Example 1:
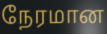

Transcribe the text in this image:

நேரமான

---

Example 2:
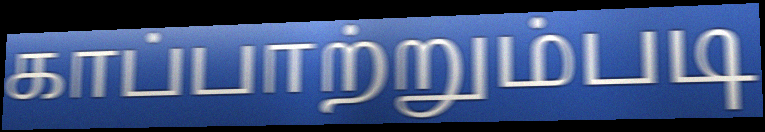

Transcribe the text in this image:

காப்பாற்றும்படி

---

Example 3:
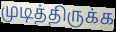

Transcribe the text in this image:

முடித்திருக்க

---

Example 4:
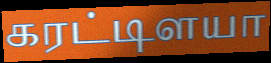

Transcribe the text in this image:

கரட்டிளயா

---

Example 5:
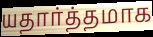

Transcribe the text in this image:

யதார்த்தமாக